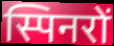
स्पिनरों